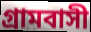
গ্রামবাসী